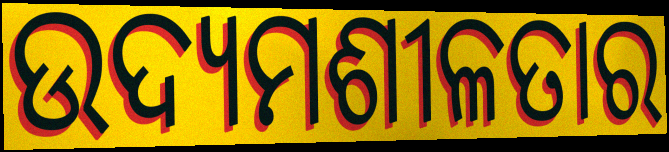
ଉଦ୍ୟମଶୀଳତାର